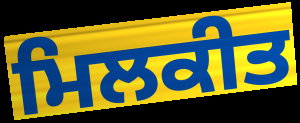
ਮਿਲਕੀਤ